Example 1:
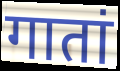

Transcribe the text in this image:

गातां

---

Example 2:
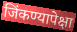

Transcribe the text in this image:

जिंकण्यापेक्षा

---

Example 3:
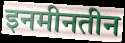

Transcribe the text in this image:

इनमीनतीन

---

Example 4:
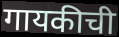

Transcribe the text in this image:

गायकीची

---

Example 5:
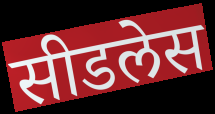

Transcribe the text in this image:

सीडलेस